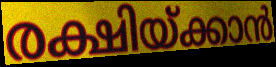
രക്ഷിയ്ക്കാൻ